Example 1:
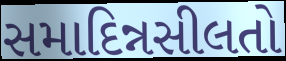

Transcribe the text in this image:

સમાદિન્નસીલતો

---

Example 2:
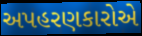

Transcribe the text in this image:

અપહરણકારોએ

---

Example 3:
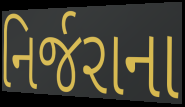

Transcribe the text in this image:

નિર્જરાના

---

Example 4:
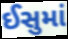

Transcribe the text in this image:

ઈસુમાં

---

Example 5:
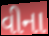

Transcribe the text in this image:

વીના